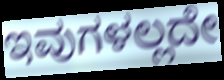
ಇವುಗಳಲ್ಲದೇ